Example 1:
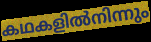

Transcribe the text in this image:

കഥകളിൽനിന്നും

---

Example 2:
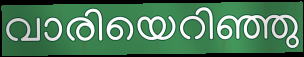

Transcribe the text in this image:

വാരിയെറിഞ്ഞു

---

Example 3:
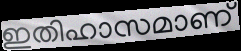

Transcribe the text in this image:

ഇതിഹാസമാണ്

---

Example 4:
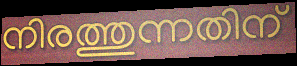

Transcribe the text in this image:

നിരത്തുന്നതിന്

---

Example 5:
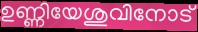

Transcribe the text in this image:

ഉണ്ണിയേശുവിനോട്